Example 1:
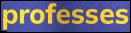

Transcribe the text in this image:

professes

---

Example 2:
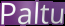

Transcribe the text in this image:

Paltu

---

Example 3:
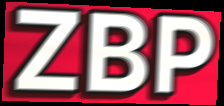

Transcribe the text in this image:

ZBP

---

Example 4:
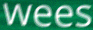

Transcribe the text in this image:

wees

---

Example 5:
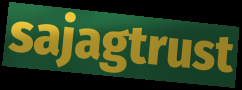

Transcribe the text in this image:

sajagtrust